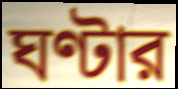
ঘণ্টার